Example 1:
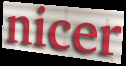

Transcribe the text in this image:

nicer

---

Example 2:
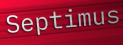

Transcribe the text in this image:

Septimus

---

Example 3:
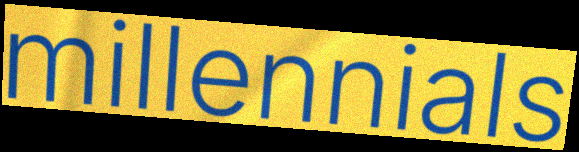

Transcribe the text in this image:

millennials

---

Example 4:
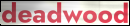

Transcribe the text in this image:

deadwood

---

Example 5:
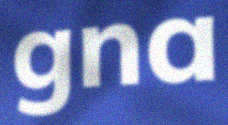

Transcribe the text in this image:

gna